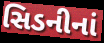
સિડનીનાં